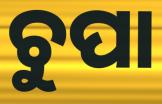
ଚୁପା